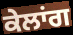
ਕੇਲਾਂਗ